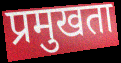
प्रमुखता